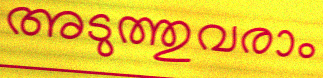
അടുത്തുവരാം